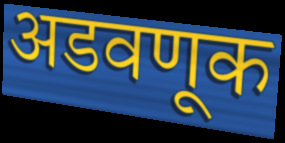
अडवणूक